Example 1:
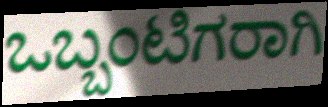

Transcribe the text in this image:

ಒಬ್ಬಂಟಿಗರಾಗಿ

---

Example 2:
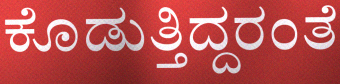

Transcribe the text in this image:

ಕೊಡುತ್ತಿದ್ದರಂತೆ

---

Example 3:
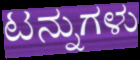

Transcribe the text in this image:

ಟನ್ನುಗಳು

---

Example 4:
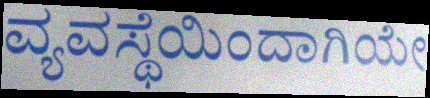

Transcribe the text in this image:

ವ್ಯವಸ್ಥೆಯಿಂದಾಗಿಯೇ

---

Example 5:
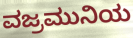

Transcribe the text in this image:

ವಜ್ರಮುನಿಯ